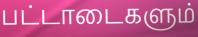
பட்டாடைகளும்